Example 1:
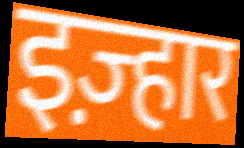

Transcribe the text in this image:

इज़्हार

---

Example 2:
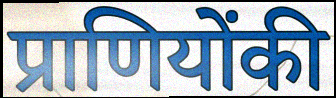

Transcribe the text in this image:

प्राणियोंकी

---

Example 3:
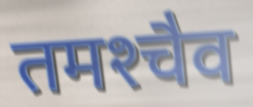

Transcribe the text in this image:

तमश्चैव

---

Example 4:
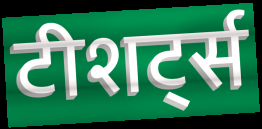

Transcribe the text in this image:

टीशर्ट्स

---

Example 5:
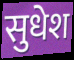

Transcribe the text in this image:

सुधेश